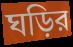
ঘড়ির